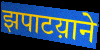
झपाटय़ाने